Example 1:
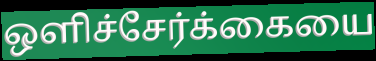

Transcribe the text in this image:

ஒளிச்சேர்க்கையை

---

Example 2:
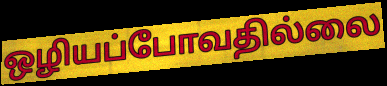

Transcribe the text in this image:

ஒழியப்போவதில்லை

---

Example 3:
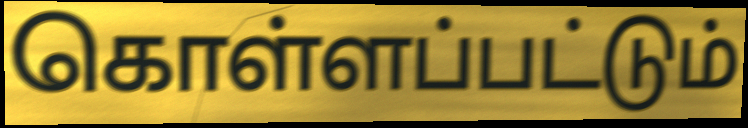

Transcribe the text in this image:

கொள்ளப்பட்டும்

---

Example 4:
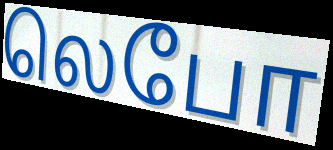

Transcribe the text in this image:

லெபோ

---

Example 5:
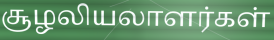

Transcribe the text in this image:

சூழலியலாளர்கள்